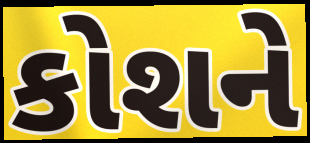
કોશને